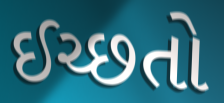
ઈચ્છતો